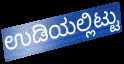
ಉಡಿಯಲ್ಲಿಟ್ಟು